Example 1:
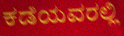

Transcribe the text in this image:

ಕಡೆಯವರಲ್ಲಿ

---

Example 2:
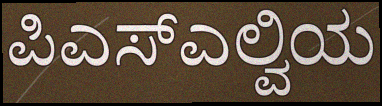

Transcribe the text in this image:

ಪಿಎಸ್ಎಲ್ವಿಯ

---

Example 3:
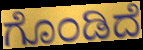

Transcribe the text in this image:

ಗೊಂಡಿದೆ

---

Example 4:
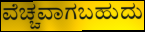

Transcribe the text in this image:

ವೆಚ್ಚವಾಗಬಹುದು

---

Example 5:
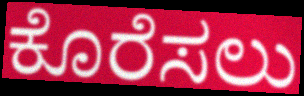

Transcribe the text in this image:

ಕೊರೆಸಲು